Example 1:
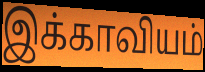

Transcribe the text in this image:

இக்காவியம்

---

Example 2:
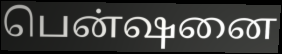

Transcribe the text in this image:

பென்ஷனை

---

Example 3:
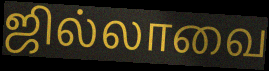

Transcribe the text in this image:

ஜில்லாவை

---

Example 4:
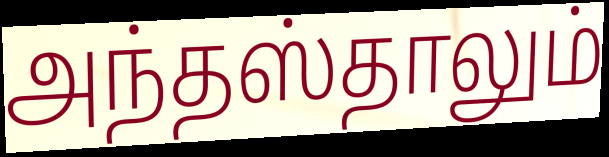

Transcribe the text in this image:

அந்தஸ்தாலும்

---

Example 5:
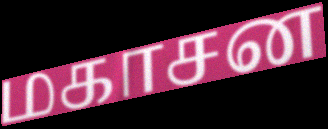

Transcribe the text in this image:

மகாசன